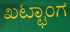
ಖಟ್ಟಾಂಗ